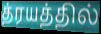
த்ரயத்தில்